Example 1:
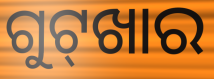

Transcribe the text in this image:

ଗୁଟ୍‌ଖାର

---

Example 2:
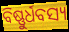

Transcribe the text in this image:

ବିଷ୍ଣୁର୍ଧବସ୍ୟ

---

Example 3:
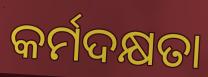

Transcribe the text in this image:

କର୍ମଦକ୍ଷତା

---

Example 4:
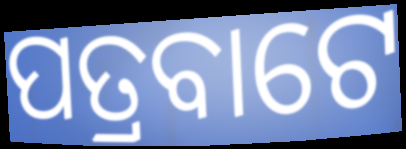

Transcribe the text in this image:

ପତ୍ରବାଟେ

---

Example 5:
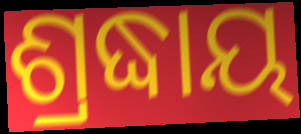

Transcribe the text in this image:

ଶ୍ରଦ୍ଧାୟ